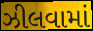
ઝીલવામાં